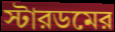
স্টারডমের